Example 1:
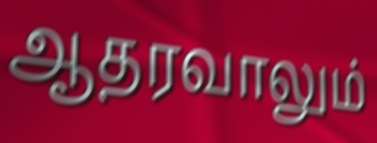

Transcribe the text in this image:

ஆதரவாலும்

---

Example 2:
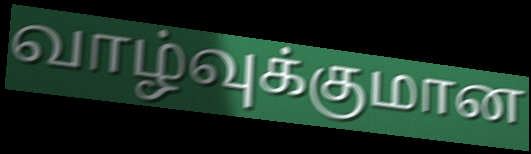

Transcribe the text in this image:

வாழ்வுக்குமான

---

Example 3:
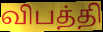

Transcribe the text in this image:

விபத்தி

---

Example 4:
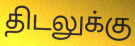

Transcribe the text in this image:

திடலுக்கு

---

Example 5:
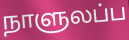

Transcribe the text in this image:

நாளுலப்ப